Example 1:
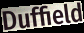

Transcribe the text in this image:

Duffield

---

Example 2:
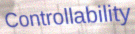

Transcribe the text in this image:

Controllability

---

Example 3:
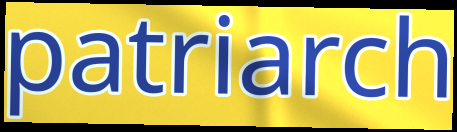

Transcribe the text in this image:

patriarch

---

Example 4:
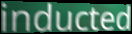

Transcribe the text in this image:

inducted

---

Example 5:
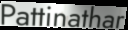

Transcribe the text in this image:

Pattinathar